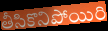
తీసికొనిపోయిరి